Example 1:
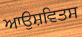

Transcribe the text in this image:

ਆਉਸ਼ਵਿਤਸ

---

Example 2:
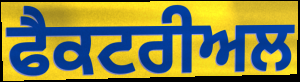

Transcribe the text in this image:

ਫੈਕਟਰੀਅਲ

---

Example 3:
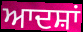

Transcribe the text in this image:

ਆਦਸ਼ਾਂ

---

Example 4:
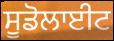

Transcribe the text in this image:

ਸੂਡੋਲਾਈਟ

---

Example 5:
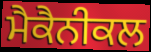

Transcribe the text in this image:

ਮੈਕੈਨੀਕਲ